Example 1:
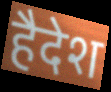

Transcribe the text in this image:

हैदेश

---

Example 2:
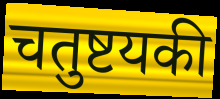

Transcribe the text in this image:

चतुष्टयकी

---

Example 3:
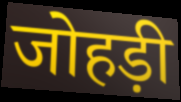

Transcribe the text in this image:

जोहड़ी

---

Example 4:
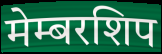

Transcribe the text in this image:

मेम्बरशिप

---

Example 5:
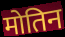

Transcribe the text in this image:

मोतिन